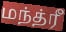
மந்த்ரீ